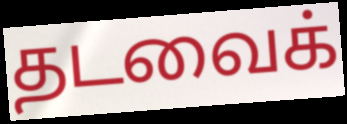
தடவைக்